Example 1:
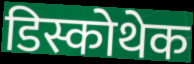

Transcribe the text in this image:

डिस्कोथेक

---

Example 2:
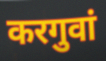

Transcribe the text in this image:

करगुवां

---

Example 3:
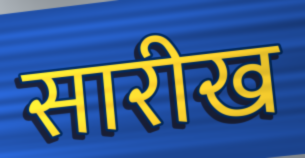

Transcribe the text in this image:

सारीख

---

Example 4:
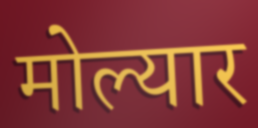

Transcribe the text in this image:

मोल्यार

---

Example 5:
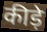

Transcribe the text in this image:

कीड़े